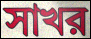
সাখর